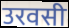
उरवसी